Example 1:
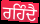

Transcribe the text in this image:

ਰਹਿੰਦੈ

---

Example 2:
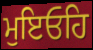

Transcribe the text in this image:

ਮੁਇਓਹਿ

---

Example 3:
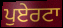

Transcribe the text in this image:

ਪੁਏਰਟਾ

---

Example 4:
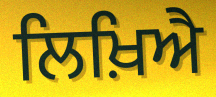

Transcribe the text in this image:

ਲਿਖ਼ਿਐ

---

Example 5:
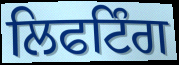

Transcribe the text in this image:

ਲਿਫਟਿੰਗ